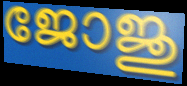
ജോജു